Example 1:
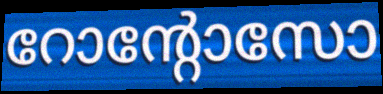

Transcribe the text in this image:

റോന്റോസോ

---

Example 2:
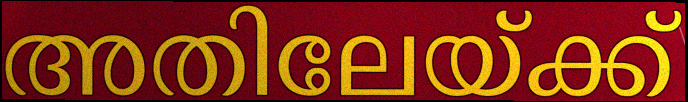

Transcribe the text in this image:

അതിലേയ്ക്ക്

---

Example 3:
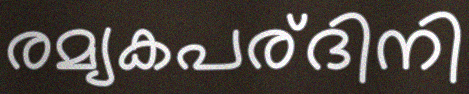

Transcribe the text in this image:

രമ്യകപര്ദിനി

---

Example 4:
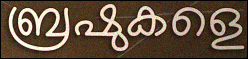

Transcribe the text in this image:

ബ്രഷുകളെ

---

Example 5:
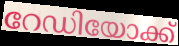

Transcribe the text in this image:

റേഡിയോക്ക്